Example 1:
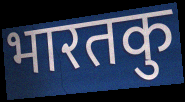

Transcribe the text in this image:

भारतकु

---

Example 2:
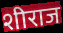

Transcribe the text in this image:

शीराज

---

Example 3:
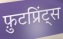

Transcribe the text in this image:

फ़ुटप्रिंट्स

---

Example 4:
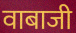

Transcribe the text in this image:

वाबाजी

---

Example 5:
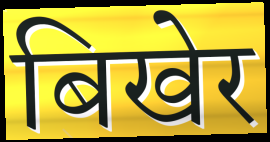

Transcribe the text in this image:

बिखेर